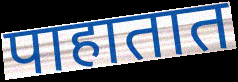
पाहातात